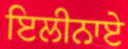
ਇਲੀਨਾਏ